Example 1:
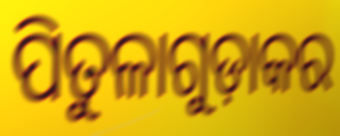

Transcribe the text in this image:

ପିତୁଳାଗୁଡ଼ାକର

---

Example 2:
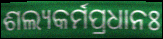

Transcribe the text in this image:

ଶଲ୍ୟକର୍ମପ୍ରଧାନଃ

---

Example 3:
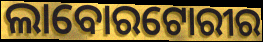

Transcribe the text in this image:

ଲାବୋରଟୋରୀର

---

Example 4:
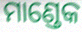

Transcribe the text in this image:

ମାଣ୍ଡେକ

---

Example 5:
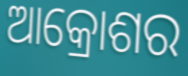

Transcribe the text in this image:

ଆକ୍ରୋଶର